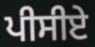
ਪੀਸੀਏ